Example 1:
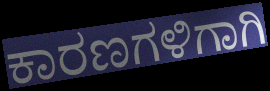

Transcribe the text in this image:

ಕಾರಣಗಳಿಗಾಗಿ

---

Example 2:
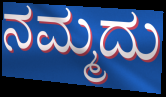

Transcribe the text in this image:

ನಮ್ಮದು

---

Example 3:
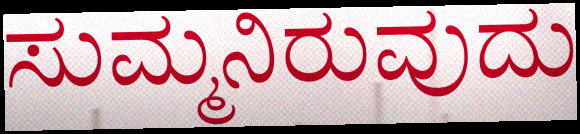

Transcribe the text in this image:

ಸುಮ್ಮನಿರುವುದು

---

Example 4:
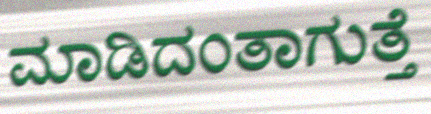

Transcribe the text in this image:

ಮಾಡಿದಂತಾಗುತ್ತೆ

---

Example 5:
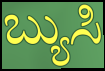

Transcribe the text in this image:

ಬ್ಯುಸಿ